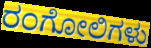
ರಂಗೋಲಿಗಳು